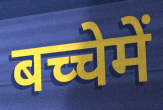
बच्चेमें